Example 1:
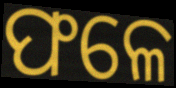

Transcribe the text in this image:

ଫଳେ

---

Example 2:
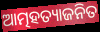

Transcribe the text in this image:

ଆତ୍ମହତ୍ୟାଜନିତ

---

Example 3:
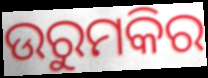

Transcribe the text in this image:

ଉରୁମକିର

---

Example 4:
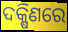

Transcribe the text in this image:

ଦକ୍ଷିଣରେ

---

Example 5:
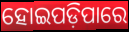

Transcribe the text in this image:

ହୋଇପଡ଼ିପାରେ